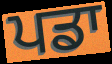
ਪਡਾ